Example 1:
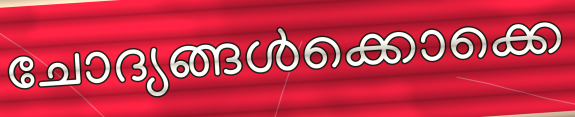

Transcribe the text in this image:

ചോദ്യങ്ങൾക്കൊക്കെ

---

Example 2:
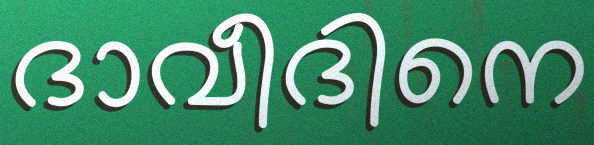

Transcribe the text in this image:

ദാവീദിനെ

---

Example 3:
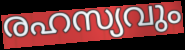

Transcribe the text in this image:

രഹസ്യവും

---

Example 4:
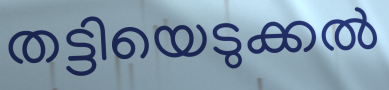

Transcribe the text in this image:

തട്ടിയെടുക്കൽ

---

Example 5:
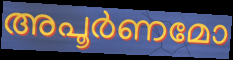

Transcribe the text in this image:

അപൂർണമോ